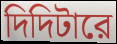
দিদিটারে